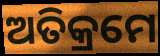
ଅତିକ୍ରମେ